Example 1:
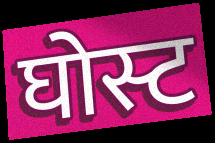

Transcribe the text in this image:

घोस्‍ट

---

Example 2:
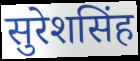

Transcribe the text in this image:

सुरेशसिंह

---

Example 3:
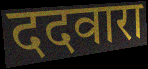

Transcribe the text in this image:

ददवारा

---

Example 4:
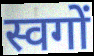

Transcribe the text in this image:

स्वगों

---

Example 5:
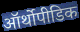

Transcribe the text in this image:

ऑर्थोपीडिक